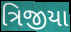
ત્રિજીયા